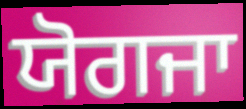
ਯੋਗਜਾ